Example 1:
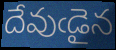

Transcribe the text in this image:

దేవుఁడైన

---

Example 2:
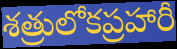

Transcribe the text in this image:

శత్రులోకప్రహారీ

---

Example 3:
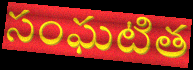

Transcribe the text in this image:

సంఘటిత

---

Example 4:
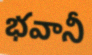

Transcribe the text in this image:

భవానీ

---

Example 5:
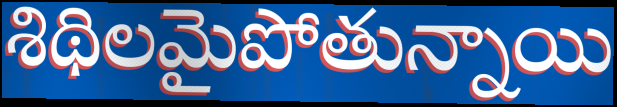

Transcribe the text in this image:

శిథిలమైపోతున్నాయి